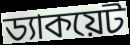
ড্যাকয়েট